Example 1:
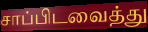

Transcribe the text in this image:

சாப்பிடவைத்து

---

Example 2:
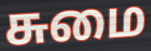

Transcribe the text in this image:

சுமை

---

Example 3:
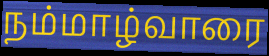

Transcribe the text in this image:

நம்மாழ்வாரை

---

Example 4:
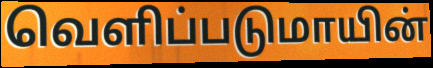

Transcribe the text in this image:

வெளிப்படுமாயின்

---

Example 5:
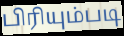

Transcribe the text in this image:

பிரியும்படி